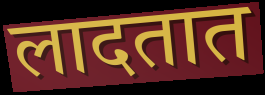
लादतात